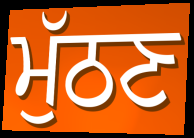
ਮੁੱਠਣ